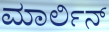
ಮಾರ್ಲಿನ್